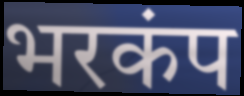
भरकंप